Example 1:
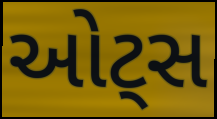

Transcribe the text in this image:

ઓટ્સ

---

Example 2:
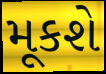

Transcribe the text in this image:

મૂકશે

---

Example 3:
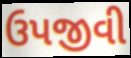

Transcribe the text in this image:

ઉપજીવી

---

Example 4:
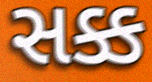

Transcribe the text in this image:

સક્ક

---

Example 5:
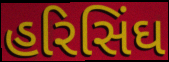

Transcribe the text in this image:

હરિસિંઘ